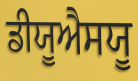
ਡੀਯੂਐਸਯੂ